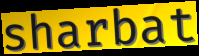
sharbat